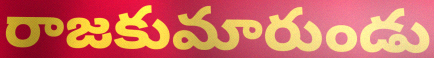
రాజకుమారుండు